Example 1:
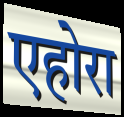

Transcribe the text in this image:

एहोरा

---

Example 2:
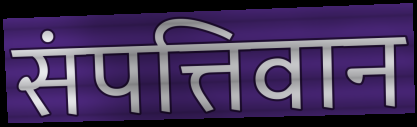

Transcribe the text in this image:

संपत्तिवान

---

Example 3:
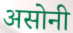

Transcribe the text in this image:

असोनी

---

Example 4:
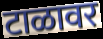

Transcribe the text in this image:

टाळावर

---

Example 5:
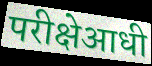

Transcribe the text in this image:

परीक्षेआधी